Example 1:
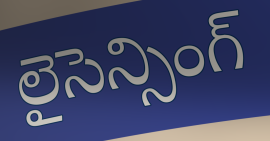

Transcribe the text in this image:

లైసెన్సింగ్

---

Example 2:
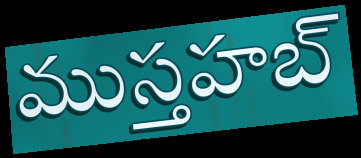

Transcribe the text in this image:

ముస్తహబ్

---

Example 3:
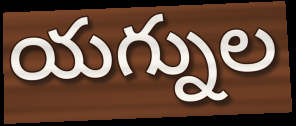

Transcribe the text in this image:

యగ్నుల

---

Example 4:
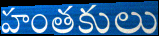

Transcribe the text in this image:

హంతకులు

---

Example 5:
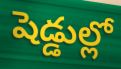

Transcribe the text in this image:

షెడ్డుల్లో